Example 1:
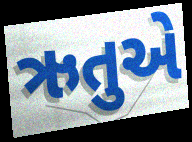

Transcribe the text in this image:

ઋતુએ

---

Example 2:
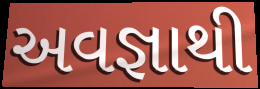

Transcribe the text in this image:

અવજ્ઞાથી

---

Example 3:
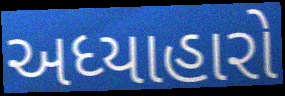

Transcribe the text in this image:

અધ્યાહારો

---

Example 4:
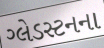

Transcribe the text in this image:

ગ્લેડસ્ટનના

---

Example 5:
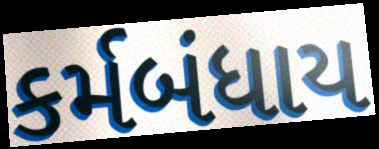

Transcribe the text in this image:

કર્મબંધાય